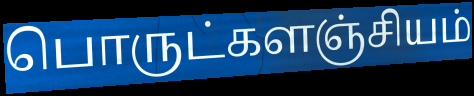
பொருட்களஞ்சியம்